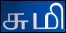
சுமி